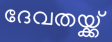
ദേവതയ്ക്ക്